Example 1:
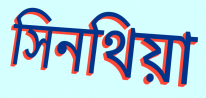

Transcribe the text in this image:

সিনথিয়া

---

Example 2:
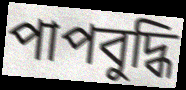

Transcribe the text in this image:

পাপবুদ্ধি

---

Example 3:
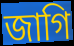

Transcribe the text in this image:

জাগি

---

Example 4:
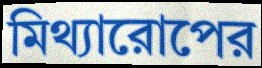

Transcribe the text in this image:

মিথ্যারোপের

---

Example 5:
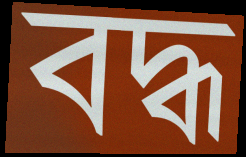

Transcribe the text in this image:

বদ্ধ